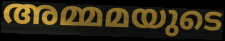
അമ്മമയുടെ